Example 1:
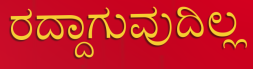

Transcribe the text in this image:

ರದ್ದಾಗುವುದಿಲ್ಲ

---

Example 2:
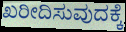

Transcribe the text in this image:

ಖರೀದಿಸುವುದಕ್ಕೆ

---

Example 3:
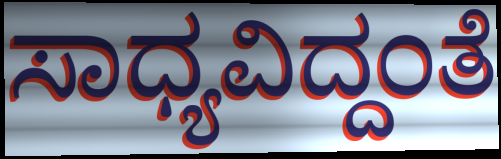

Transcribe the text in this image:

ಸಾಧ್ಯವಿದ್ದಂತೆ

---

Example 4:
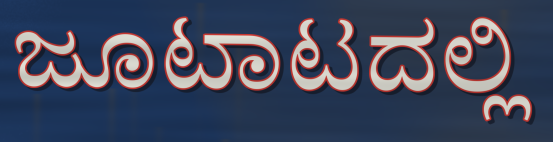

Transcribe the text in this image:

ಜೂಟಾಟದಲ್ಲಿ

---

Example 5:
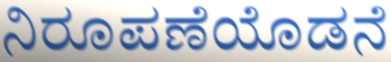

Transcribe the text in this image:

ನಿರೂಪಣೆಯೊಡನೆ